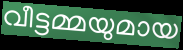
വീട്ടമ്മയുമായ